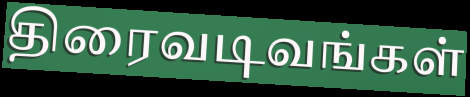
திரைவடிவங்கள்